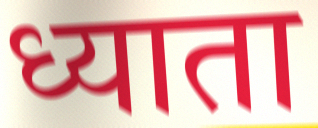
ध्याता